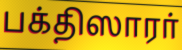
பக்திஸாரர்